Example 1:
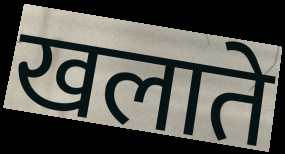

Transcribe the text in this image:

खलाते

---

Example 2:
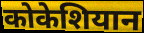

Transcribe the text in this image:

कोकेशियान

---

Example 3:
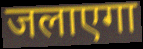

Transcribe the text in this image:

जलाएगा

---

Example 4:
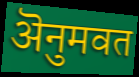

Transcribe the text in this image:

ऄनुमवत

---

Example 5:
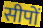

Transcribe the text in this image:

सीपों